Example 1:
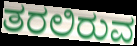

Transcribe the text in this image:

ತರಲಿರುವ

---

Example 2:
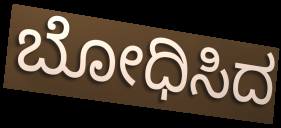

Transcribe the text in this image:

ಬೋಧಿಸಿದ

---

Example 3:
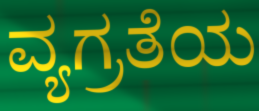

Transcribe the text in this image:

ವ್ಯಗ್ರತೆಯ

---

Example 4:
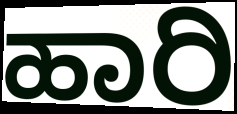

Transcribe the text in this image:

ಹಾರಿ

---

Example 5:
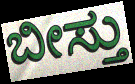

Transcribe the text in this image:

ಬೀಸ್ತು